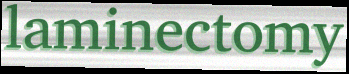
laminectomy